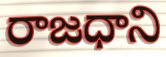
రాజధాని